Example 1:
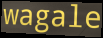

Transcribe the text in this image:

wagale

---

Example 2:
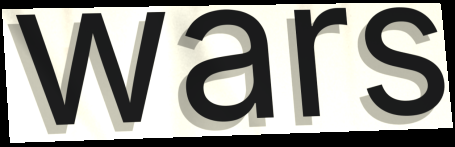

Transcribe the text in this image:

wars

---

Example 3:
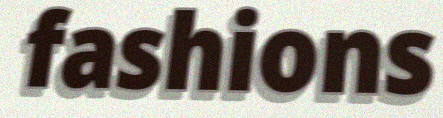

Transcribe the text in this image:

fashions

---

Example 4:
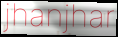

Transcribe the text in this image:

jhanjhar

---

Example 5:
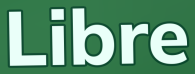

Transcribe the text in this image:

Libre